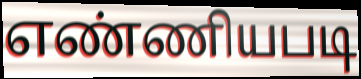
எண்ணியபடி